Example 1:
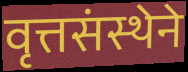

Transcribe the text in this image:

वृत्तसंस्थेने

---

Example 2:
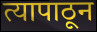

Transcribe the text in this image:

त्यापाठून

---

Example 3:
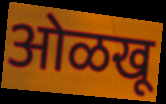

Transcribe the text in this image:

ओळखू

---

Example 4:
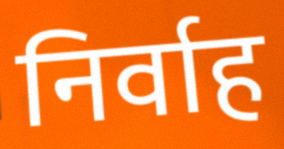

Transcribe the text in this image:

निर्वाह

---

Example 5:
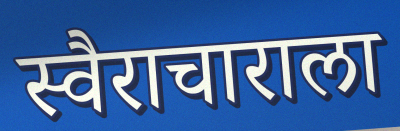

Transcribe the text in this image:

स्वैराचाराला